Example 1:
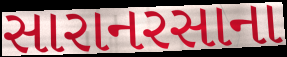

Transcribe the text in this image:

સારાનરસાના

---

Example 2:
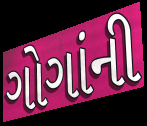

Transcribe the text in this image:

ગોગાંની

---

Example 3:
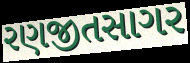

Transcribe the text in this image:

રણજીતસાગર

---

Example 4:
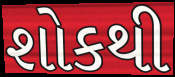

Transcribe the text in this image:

શોકથી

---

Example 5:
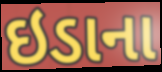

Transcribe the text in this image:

ઇડાના